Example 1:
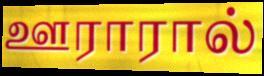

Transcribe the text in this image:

ஊராரால்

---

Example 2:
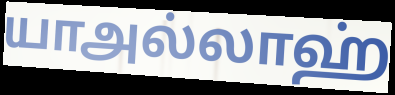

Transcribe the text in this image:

யாஅல்லாஹ்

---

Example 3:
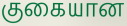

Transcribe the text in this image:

குகையான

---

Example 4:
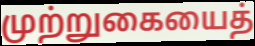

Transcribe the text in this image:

முற்றுகையைத்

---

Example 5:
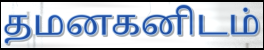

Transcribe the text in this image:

தமனகனிடம்